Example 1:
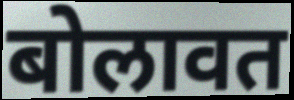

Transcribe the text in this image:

बोलावत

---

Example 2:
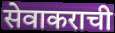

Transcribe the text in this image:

सेवाकराची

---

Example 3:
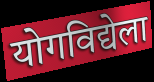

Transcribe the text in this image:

योगविद्येला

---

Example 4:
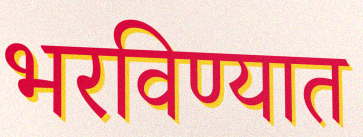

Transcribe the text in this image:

भरविण्यात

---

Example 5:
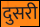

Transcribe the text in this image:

दुसरी